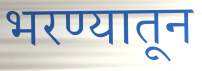
भरण्यातून